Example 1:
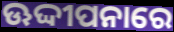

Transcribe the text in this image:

ଊଦ୍ଦୀପନାରେ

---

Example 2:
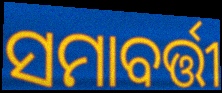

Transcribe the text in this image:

ସମାବର୍ତ୍ତୀ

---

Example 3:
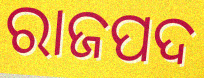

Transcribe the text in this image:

ରାଜପଦ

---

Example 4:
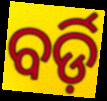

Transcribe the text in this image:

ବର୍ଡ଼ି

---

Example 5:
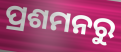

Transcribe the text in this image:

ପ୍ରଶମନରୁ